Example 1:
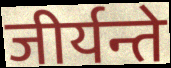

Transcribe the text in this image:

जीर्यन्ते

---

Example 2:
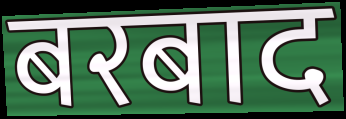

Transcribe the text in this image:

बरबाद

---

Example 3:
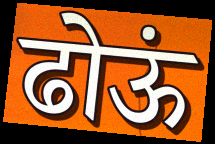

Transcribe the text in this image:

ढोऊं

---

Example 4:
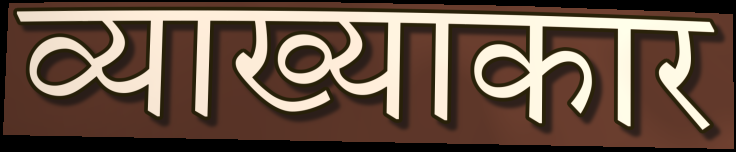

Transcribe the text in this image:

व्याख्याकार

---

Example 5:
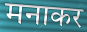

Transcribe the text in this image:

मनाकर